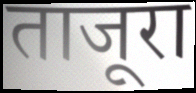
ताजूरा